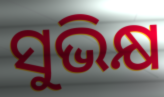
ସୁଭିକ୍ଷ